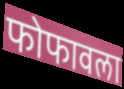
फोफावला